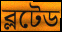
ব্লটেড